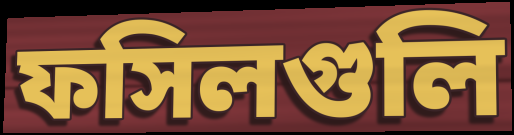
ফসিলগুলি